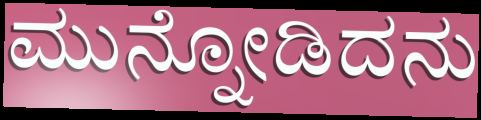
ಮುನ್ನೋಡಿದನು